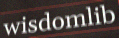
wisdomlib